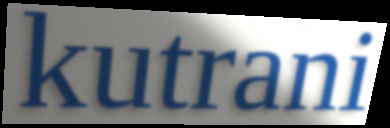
kutrani